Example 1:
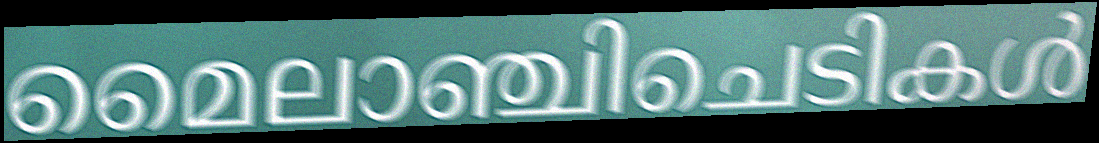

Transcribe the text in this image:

മൈലാഞ്ചിചെടികൾ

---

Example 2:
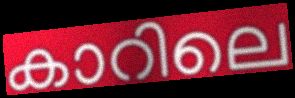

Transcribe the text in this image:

കാറിലെ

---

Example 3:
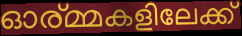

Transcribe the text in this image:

ഓര്മ്മകളിലേക്ക്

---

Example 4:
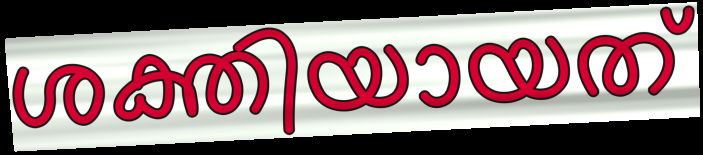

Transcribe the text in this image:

ശക്തിയായത്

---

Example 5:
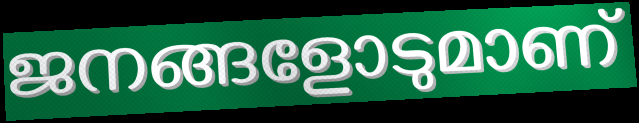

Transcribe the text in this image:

ജനങ്ങളോടുമാണ്